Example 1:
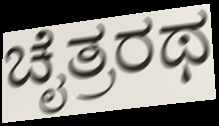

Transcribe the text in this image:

ಚೈತ್ರರಥ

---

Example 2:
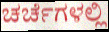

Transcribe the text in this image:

ಚರ್ಚೆಗಳಲ್ಲಿ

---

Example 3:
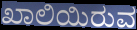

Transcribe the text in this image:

ಖಾಲಿಯಿರುವ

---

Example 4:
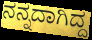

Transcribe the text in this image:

ನನ್ನದಾಗಿದ್ದ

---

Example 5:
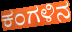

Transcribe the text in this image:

ಕಂಗಳಿನ